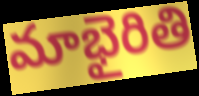
మాభైరితి